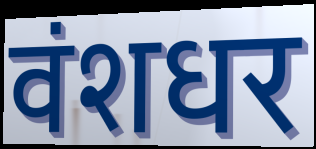
वंशधर